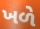
ખળે